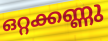
ഒറ്റക്കണ്ണു